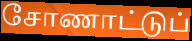
சோணாட்டுப்